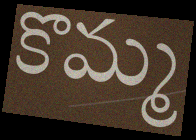
కొమ్మ